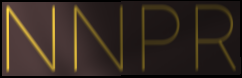
NNPR